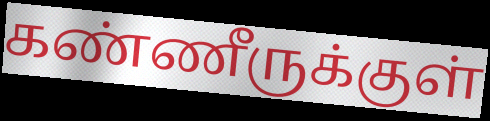
கண்ணீருக்குள்